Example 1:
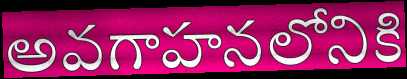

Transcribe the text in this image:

అవగాహనలోనికి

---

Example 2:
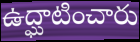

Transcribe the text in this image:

ఉద్ఘాటించారు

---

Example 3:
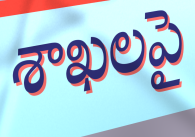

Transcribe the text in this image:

శాఖలపై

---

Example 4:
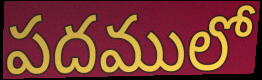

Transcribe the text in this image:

పదములో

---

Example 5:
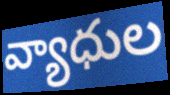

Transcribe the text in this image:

వ్యాధుల